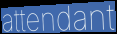
attendant